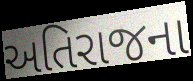
અતિરાજના